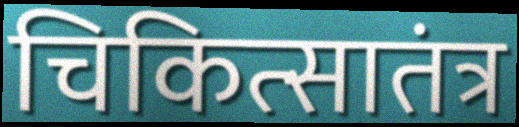
चिकित्सातंत्र